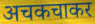
अचकचाकर